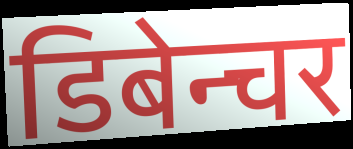
डिबेन्चर